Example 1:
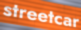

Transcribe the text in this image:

streetcar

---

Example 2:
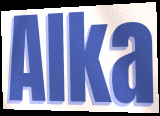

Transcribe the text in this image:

Alka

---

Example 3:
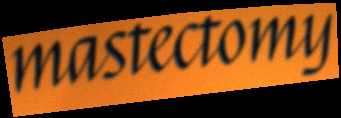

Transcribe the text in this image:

mastectomy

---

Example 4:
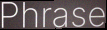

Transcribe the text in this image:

Phrase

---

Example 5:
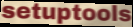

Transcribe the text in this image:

setuptools